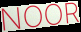
NOOR